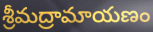
శ్రీమద్రామాయణం